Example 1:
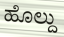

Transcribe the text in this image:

ಹೊಲ್ದು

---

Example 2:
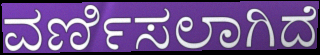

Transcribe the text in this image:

ವರ್ಣಿಸಲಾಗಿದೆ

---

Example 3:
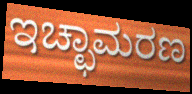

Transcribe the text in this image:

ಇಚ್ಛಾಮರಣ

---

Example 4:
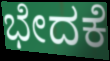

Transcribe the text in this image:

ಭೇದಕೆ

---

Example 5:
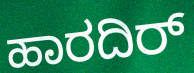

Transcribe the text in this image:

ಹಾರದಿರ್